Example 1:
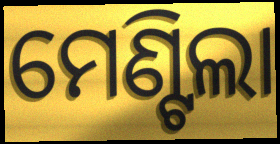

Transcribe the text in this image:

ମେଣ୍ଟିଲା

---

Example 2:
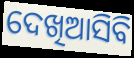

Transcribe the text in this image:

ଦେଖିଆସିବି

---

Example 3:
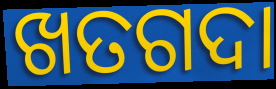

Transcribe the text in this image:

ଖତଗଦା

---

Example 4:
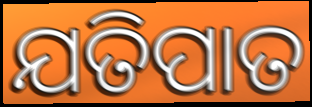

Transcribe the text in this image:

ଯତିପାତ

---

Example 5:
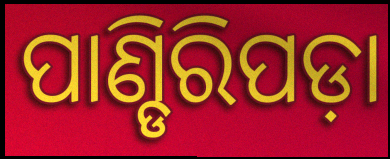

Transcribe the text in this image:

ପାଣ୍ଡିରିପଡ଼ା